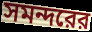
সমন্দরের